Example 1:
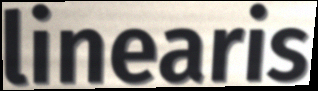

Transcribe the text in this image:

linearis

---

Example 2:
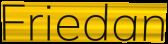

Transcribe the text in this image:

Friedan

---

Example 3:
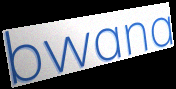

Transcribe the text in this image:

bwana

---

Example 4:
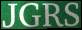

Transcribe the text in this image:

JGRS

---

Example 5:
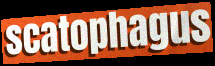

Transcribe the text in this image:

scatophagus